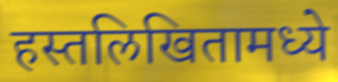
हस्तलिखितामध्ये